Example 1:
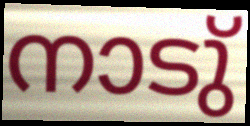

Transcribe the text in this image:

നാടു്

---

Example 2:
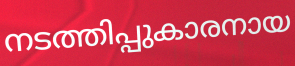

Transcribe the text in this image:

നടത്തിപ്പുകാരനായ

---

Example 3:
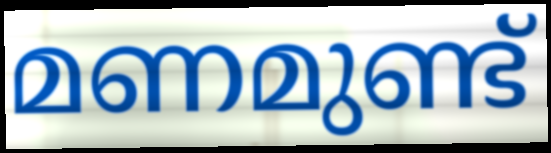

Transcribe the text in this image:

മണമുണ്ട്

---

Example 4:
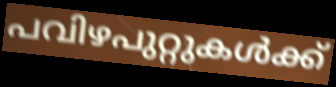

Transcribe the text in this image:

പവിഴപുറ്റുകൾക്ക്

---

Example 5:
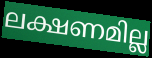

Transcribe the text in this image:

ലക്ഷണമില്ല